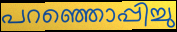
പറഞ്ഞൊപ്പിച്ചു